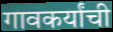
गावकर्यांची